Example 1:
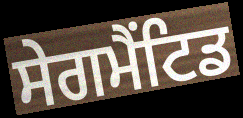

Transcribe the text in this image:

ਸੇਗਮੈਂਟਿਡ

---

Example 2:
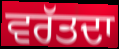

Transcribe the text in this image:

ਵਰੱਤਦਾ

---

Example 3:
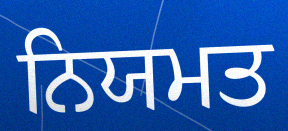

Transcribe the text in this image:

ਨਿਯਮਤ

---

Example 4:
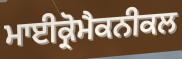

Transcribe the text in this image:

ਮਾਈਕ੍ਰੋਮੈਕਨੀਕਲ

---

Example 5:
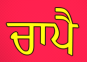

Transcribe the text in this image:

ਚਾਪੈ